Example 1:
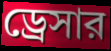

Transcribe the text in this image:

ড্রেসার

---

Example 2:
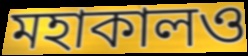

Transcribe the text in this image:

মহাকালও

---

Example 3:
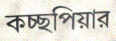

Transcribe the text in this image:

কচ্ছপিয়ার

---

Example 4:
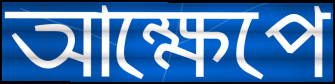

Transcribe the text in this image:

আক্ষেপে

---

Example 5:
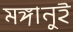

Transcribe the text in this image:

মঙ্গানুই